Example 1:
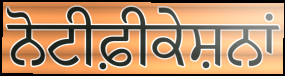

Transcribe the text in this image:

ਨੋਟੀਫ਼ੀਕੇਸ਼ਨਾਂ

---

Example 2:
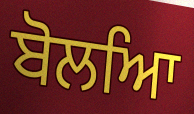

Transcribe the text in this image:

ਬੋਲਆਿ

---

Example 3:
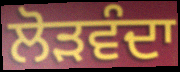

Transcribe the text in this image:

ਲੋੜਵੰਦਾ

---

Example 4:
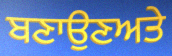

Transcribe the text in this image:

ਬਣਾਉਣਅਤੇ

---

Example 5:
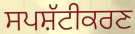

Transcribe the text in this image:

ਸਪਸ਼ੱਟੀਕਰਣ